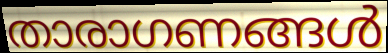
താരാഗണങ്ങൾ